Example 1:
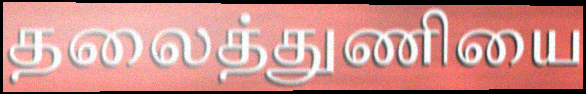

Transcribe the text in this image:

தலைத்துணியை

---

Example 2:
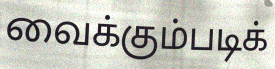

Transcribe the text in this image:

வைக்கும்படிக்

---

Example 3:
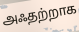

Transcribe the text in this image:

அஃதற்றாக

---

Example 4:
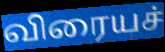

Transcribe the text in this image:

விரையச்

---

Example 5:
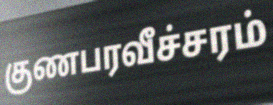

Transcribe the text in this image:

குணபரவீச்சரம்